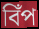
বিঁপ